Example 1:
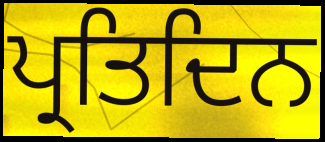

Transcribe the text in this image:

ਪ੍ਰਤਿਦਿਨ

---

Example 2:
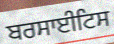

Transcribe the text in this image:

ਬਰਸਾਈਟਿਸ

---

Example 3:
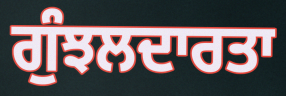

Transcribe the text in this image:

ਗੁੰਝਲਦਾਰਤਾ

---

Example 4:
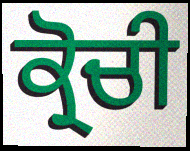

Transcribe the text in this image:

ਕ੍ਰੋਚੀ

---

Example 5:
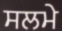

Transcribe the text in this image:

ਸਲਮੇ